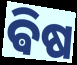
ଵିଷ